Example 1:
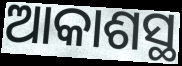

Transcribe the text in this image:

ଆକାଶସ୍ଥ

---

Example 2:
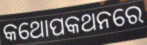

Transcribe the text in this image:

କଥୋପକଥନରେ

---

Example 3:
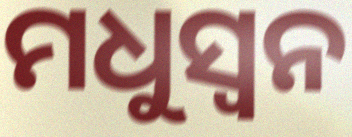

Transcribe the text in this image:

ମଧୁସ୍ୱନ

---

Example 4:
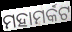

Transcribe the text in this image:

ମହାମର୍କଟ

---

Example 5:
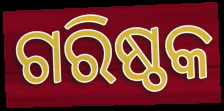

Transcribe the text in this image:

ଗରିଷ୍ଠକ